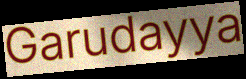
Garudayya